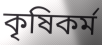
কৃষিকর্ম